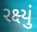
રક્ષ્યું